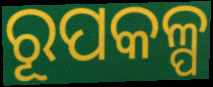
ରୂପକଳ୍ପ